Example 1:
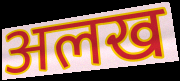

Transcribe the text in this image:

अलख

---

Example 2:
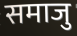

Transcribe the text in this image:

समाजु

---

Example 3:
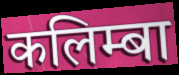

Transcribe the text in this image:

कलिम्बा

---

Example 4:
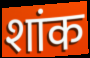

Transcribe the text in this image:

शांक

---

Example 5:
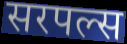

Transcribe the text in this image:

सरपल्स